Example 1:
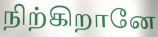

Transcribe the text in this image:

நிற்கிறானே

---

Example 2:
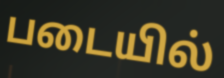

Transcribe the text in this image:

படையில்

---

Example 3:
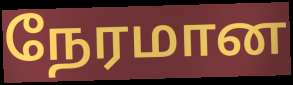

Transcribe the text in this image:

நேரமான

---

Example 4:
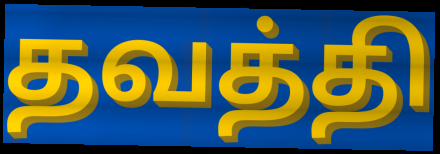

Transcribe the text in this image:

தவத்தி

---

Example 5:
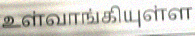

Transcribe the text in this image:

உள்வாங்கியுள்ள